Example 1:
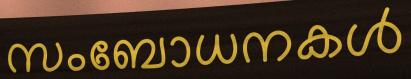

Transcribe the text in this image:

സംബോധനകൾ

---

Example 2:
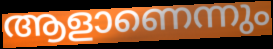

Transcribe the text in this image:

ആളാണെന്നും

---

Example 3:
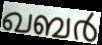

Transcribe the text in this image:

ഖബർ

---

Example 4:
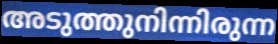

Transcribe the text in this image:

അടുത്തുനിന്നിരുന്ന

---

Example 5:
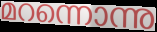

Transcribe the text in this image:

മറന്നൊന്നു